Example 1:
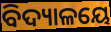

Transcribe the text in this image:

ବିଦ୍ୟାଳୟେ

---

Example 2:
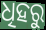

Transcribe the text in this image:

ଧିହରୁ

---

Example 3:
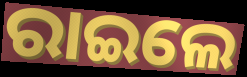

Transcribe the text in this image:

ରାଇଲେ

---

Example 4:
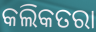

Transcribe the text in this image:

କଲିକତରା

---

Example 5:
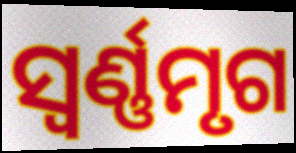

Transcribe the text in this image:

ସ୍ଵର୍ଣ୍ଣମୃଗ